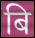
बि